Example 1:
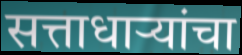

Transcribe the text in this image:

सत्ताधाऱ्यांचा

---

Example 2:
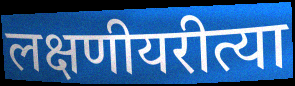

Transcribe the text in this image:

लक्षणीयरीत्या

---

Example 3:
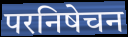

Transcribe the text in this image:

परनिषेचन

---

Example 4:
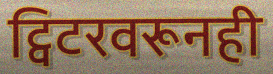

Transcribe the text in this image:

ट्विटरवरूनही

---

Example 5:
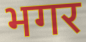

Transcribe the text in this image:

भगर